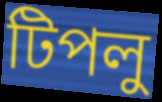
টিপলু